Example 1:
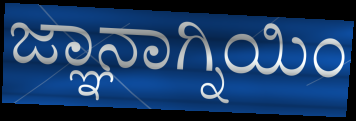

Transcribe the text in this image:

ಜ್ಞಾನಾಗ್ನಿಯಿಂ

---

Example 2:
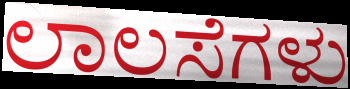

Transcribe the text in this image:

ಲಾಲಸೆಗಳು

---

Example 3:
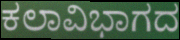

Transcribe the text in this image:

ಕಲಾವಿಭಾಗದ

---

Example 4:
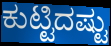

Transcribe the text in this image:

ಕುಟ್ಟಿದಷ್ಟು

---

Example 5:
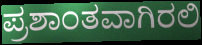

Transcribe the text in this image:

ಪ್ರಶಾಂತವಾಗಿರಲಿ